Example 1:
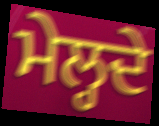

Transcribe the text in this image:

ਮੇਲ੍ਹਦੇ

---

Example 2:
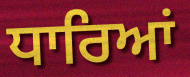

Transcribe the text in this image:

ਧਾਰਿਆਂ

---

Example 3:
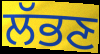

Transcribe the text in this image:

ਲੱਭਣ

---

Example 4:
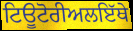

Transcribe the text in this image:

ਟਿਊਟੋਰੀਅਲਇੱਥੇ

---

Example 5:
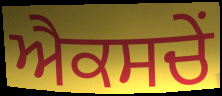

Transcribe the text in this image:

ਐਕਸਚੇਂ